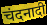
चंदनादी